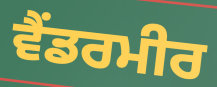
ਵੈਂਡਰਮੀਰ